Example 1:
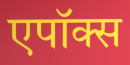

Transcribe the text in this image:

एपॉक्स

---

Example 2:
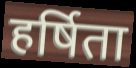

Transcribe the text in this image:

हर्षिता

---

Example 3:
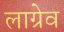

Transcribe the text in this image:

लाग्रेव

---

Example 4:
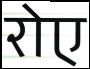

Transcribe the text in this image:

रोए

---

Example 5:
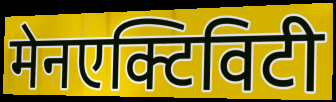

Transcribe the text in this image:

मेनएक्टिविटी